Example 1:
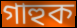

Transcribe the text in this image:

গাহুক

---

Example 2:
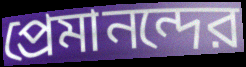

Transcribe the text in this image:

প্রেমানন্দের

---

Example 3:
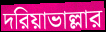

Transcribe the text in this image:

দরিয়াভাল্লার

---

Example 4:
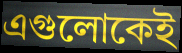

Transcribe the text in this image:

এগুলোকেই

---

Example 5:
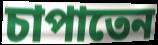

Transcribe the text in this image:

চাপাতেন